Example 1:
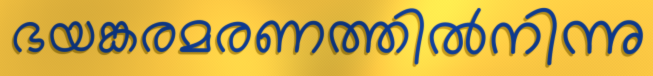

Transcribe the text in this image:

ഭയങ്കരമരണത്തിൽനിന്നു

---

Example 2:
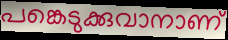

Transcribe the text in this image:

പങ്കെടുക്കുവാനാണ്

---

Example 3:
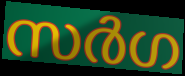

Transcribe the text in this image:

സർഗ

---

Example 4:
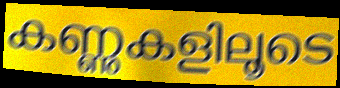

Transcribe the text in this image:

കണ്ണുകളിലൂടെ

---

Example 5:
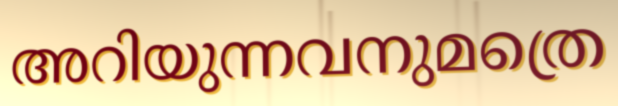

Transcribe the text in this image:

അറിയുന്നവനുമത്രെ